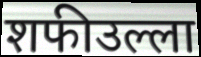
शफीउल्ला